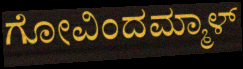
ಗೋವಿಂದಮ್ಮಾಳ್